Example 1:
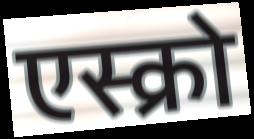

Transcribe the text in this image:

एस्क्रो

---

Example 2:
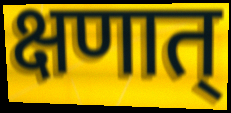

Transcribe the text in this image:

क्षणात्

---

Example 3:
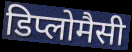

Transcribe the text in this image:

डिप्लोमैसी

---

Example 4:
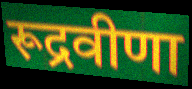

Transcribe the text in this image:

रूद्रवीणा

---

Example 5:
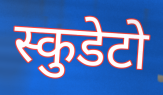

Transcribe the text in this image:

स्कुडेटो